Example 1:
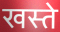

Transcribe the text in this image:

खस्ते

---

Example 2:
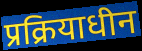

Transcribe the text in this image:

प्रक्रियाधीन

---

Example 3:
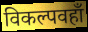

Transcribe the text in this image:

विकल्पवहाँ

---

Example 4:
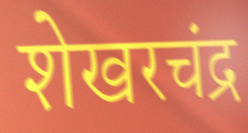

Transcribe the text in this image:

शेखरचंद्र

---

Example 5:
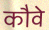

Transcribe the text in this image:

कौवे